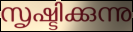
സൃഷ്ടിക്കുന്നു